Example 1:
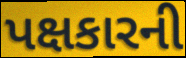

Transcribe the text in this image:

પક્ષકારની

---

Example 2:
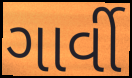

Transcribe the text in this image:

ગાર્વી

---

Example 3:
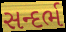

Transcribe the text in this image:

સન્દર્ભ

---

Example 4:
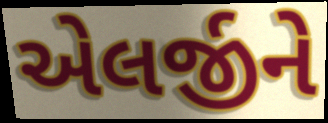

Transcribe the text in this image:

એલર્જીને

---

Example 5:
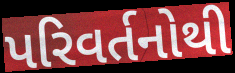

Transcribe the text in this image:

પરિવર્તનોથી